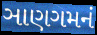
ઞાણગમનં